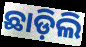
ଛାଡ଼ିଲି